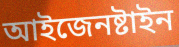
আইজেনষ্টাইন